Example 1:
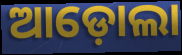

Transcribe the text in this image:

ଆଡ଼ୋଲା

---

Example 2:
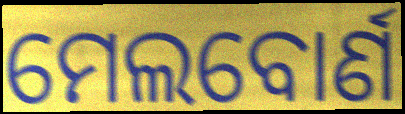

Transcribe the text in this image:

ମେଲବୋର୍ଣ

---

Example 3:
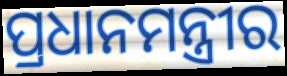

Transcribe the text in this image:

ପ୍ରଧାନମନ୍ତ୍ରୀର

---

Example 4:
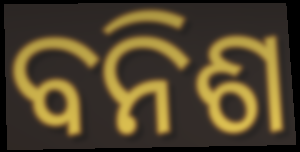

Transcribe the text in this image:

ବନିଶ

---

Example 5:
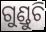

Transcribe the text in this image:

ଗୁଣ୍ଡୁଚି